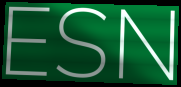
ESN